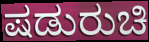
ಷಡುರುಚಿ